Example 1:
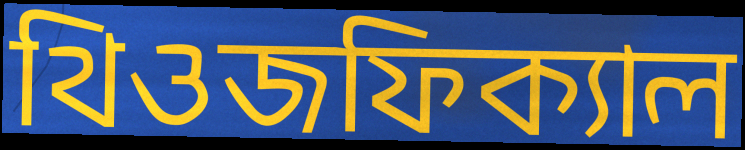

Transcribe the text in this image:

থিওজফিক্যাল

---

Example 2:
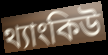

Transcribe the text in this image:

থ্যাংকিউ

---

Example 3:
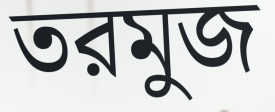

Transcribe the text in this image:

তরমুজ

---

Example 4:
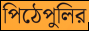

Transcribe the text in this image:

পিঠেপুলির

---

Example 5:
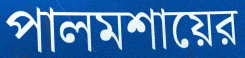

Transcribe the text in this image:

পালমশায়ের